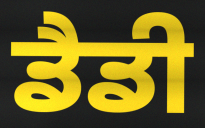
ਡੈਡੀ